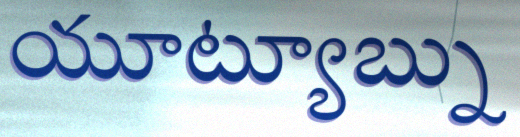
యూట్యూబ్ను